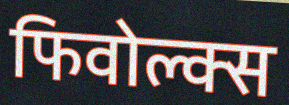
फिवोल्क्स